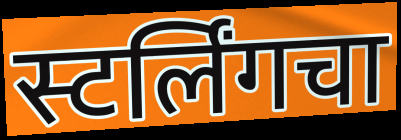
स्टर्लिंगचा